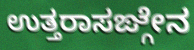
ಉತ್ತರಾಸಙ್ಗೇನ